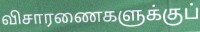
விசாரணைகளுக்குப்